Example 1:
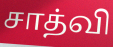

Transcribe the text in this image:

சாத்வி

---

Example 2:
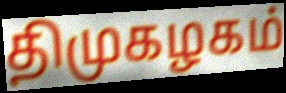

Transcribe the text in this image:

திமுகழகம்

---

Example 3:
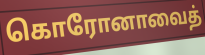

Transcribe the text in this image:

கொரோனாவைத்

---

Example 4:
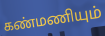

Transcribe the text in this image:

கண்மணியும்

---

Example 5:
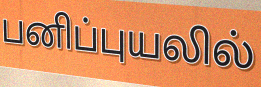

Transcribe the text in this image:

பனிப்புயலில்